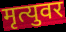
मृत्युवर